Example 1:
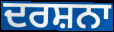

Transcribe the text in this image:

ਦਰਸ਼ਨਾ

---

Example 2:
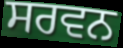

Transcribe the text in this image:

ਸਰਵਨ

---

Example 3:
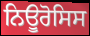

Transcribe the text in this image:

ਨਿਊਰੋਸਿਸ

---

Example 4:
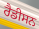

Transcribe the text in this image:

ਰੈਡੀਸਨ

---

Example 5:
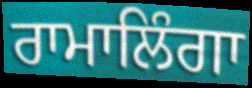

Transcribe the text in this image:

ਰਾਮਾਲਿੰਗਾ